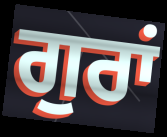
ਗੁਰਾਂ